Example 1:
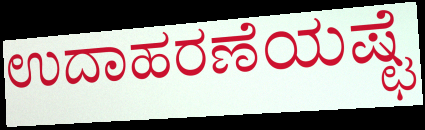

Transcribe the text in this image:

ಉದಾಹರಣೆಯಷ್ಟೆ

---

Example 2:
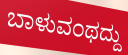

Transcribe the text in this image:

ಬಾಳುವಂಥದ್ದು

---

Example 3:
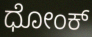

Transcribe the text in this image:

ಧೋಂಕ್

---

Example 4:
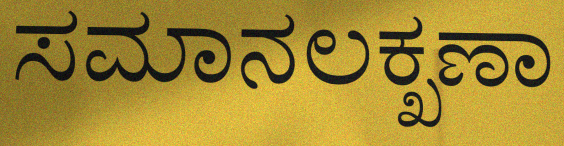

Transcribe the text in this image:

ಸಮಾನಲಕ್ಖಣಾ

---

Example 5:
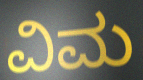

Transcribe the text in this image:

ವಿಮ